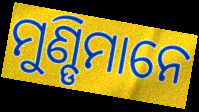
ମୁଣ୍ଡିମାନେ